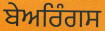
ਬੇਅਰਿੰਗਸ